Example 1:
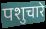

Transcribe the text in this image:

पशुचारे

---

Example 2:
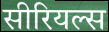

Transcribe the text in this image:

सीरियल्स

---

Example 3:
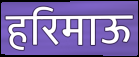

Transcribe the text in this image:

हरिमाऊ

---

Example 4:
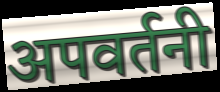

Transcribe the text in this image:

अपवर्तनी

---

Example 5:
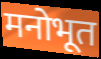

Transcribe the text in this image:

मनोभूत